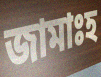
জামাঃহ